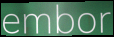
embor